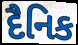
દૈનિક